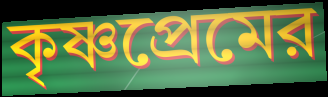
কৃষ্ণপ্রেমের